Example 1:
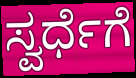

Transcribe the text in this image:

ಸ್ವರ್ಧೆಗೆ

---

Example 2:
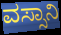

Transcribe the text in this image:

ವಸ್ಸಾನಿ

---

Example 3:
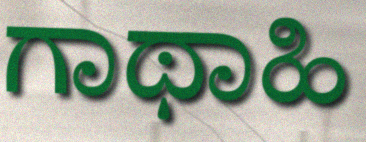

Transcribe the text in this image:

ಗಾಥಾಹಿ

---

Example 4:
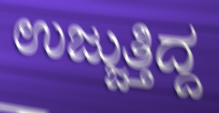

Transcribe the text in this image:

ಉಜ್ಜುತ್ತಿದ್ದ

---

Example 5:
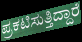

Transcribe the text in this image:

ಪ್ರಕಟಿಸುತ್ತಿದ್ದಾರೆ